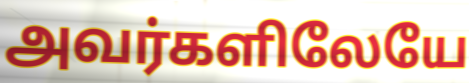
அவர்களிலேயே